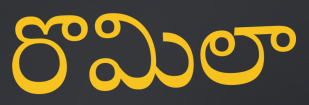
రొమిలా